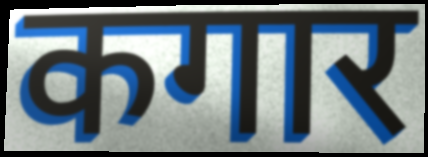
कगार